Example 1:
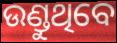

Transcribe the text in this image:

ଉଣ୍ଡୁଥିବେ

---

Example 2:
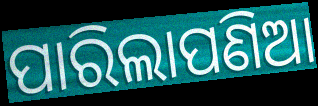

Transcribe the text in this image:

ପାରିଲାପଣିଆ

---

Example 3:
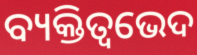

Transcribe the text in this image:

ବ୍ୟକ୍ତିତ୍ୱଭେଦ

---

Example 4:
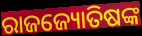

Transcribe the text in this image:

ରାଜଜ୍ୟୋତିଷଙ୍କ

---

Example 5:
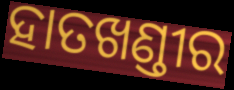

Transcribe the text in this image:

ହାତଖଣ୍ଡୀର